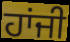
ਹਾਂਜੀ